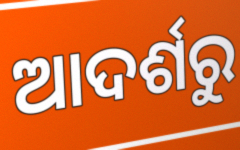
ଆଦର୍ଶରୁ